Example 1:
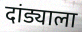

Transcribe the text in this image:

दांड्याला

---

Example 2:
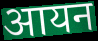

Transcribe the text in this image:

आयन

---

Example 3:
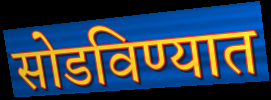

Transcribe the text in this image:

सोडविण्यात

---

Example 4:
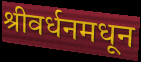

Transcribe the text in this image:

श्रीवर्धनमधून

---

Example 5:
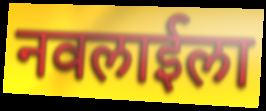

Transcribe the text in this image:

नवलाईला